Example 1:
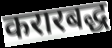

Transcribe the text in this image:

करारबद्ध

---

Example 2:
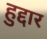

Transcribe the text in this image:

हुद्दार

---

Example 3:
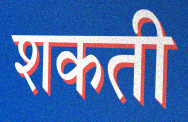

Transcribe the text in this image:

शकती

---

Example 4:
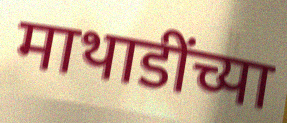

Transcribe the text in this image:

माथाडींच्या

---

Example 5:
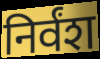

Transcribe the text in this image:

निर्वंश